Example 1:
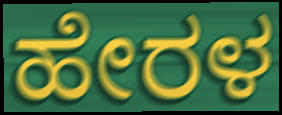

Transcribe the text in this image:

ಹೇರಳ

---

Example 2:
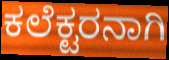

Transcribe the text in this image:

ಕಲೆಕ್ಟರನಾಗಿ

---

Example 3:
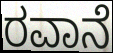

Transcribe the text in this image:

ರವಾನೆ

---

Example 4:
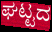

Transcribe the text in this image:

ಘಟ್ಟದ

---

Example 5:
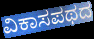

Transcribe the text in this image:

ವಿಕಾಸಪಥದ